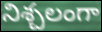
నిశ్చలంగా